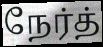
நேர்த்